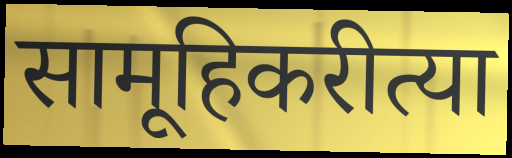
सामूहिकरीत्या